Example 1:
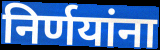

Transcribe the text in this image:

निर्णयांना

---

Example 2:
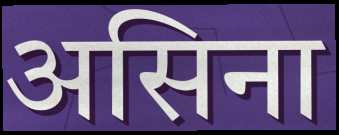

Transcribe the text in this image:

असिना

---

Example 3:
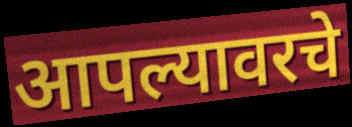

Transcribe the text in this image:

आपल्यावरचे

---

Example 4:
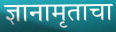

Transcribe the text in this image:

ज्ञानामृताचा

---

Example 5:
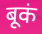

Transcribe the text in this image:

बूकं